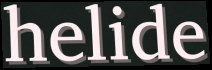
helide